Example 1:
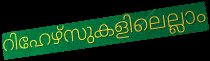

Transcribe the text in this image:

റിഹേഴ്സുകളിലെല്ലാം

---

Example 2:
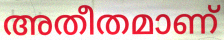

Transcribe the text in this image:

അതീതമാണ്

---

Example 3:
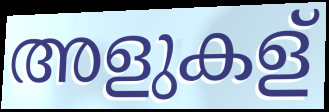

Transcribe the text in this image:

അളുകള്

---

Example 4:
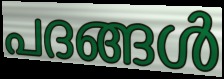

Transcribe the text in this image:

പദങ്ങൾ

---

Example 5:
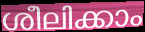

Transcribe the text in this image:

ശീലിക്കാം